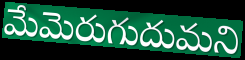
మేమెరుగుదుమని